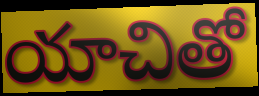
యాచితో